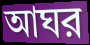
আঘর